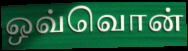
ஒவ்வொன்